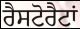
ਰੈਸਟੋਰੈਟਾਂ